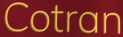
Cotran